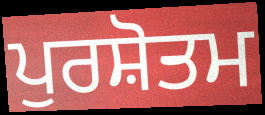
ਪੁਰਸ਼ੋਤਮ